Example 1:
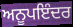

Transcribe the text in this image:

ਅਨੂਪਇੰਦਰ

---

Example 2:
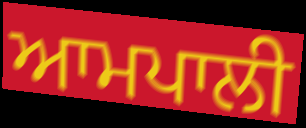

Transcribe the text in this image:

ਆਮਪਾਲੀ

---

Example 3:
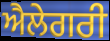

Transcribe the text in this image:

ਐਲੇਗਰੀ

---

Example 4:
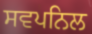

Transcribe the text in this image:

ਸਵਪਨਿਲ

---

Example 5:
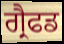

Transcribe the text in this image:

ਗ੍ਰੈਫਡ